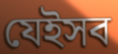
যেইসব